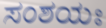
ಸಂಶಯಃ